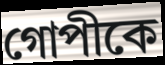
গোপীকে